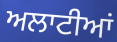
ਅਲਾਟੀਆਂ